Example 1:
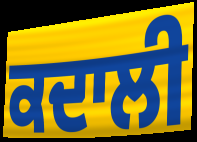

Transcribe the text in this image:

ਕਦਾਲੀ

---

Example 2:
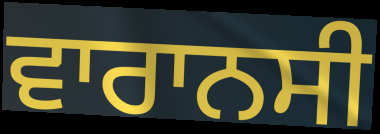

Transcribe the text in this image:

ਵਾਰਾਨਸੀ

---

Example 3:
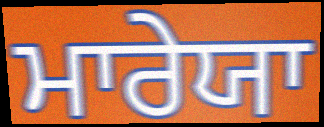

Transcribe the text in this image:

ਮਾਰੇਯਾ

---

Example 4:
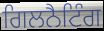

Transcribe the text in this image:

ਗਿਲਨੈਟਿੰਗ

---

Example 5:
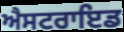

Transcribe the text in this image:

ਐਸਟਰਾਇਡ